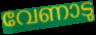
വേണാടു